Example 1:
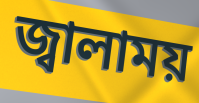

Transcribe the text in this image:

জ্বালাময়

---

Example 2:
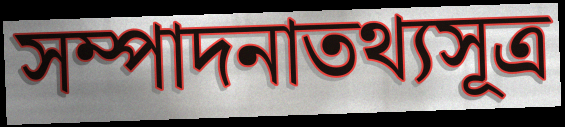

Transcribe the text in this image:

সম্পাদনাতথ্যসূত্র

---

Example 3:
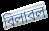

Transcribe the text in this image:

বিলাবল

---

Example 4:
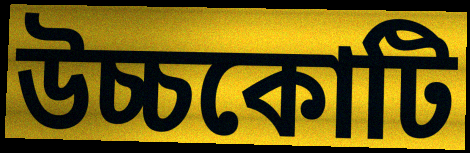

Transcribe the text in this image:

উচ্চকোটি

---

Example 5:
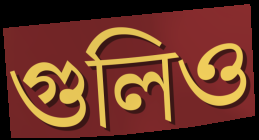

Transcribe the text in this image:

গুলিও